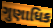
ગુણાધિક